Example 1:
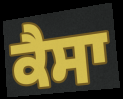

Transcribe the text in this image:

ਕੈਸਾ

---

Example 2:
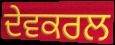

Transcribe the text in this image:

ਦੇਵਕਰਲ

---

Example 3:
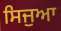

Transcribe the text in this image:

ਸਿਜੁਆ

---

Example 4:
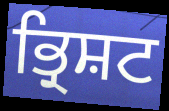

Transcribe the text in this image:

ਭ੍ਰਿਸ਼ਟ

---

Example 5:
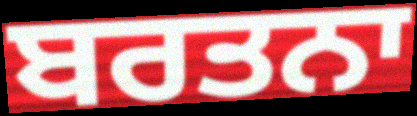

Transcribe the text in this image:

ਬਰਤਨਾ